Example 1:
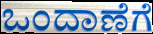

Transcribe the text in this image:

ಒಂದಾಣೆಗೆ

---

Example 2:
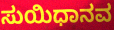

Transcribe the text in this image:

ಸುಯಿಧಾನವ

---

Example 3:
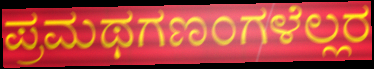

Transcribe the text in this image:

ಪ್ರಮಥಗಣಂಗಳೆಲ್ಲರ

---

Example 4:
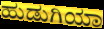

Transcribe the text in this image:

ಹುಡುಗಿಯಾ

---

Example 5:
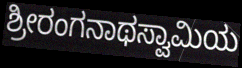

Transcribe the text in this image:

ಶ್ರೀರಂಗನಾಥಸ್ವಾಮಿಯ